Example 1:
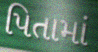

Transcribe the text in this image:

પિતામાં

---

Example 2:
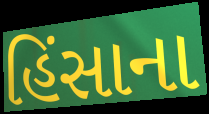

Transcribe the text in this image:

હિંસાના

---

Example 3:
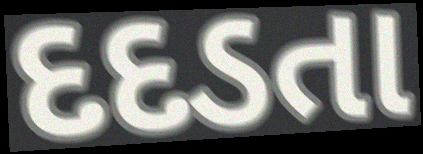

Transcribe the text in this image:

દદડતા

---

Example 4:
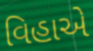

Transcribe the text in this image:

વિહાએ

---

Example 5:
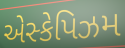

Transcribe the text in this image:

એસ્કેપિઝમ